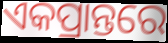
ଏକପ୍ରାନ୍ତରେ